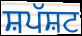
ਸ਼ਪੱਸ਼ਟ